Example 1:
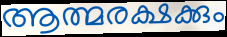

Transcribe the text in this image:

ആത്മരക്ഷക്കും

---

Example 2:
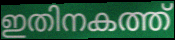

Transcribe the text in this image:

ഇതിനകത്ത്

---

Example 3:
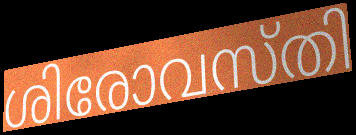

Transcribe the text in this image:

ശിരോവസ്തി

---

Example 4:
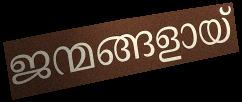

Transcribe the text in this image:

ജന്മങ്ങളായ്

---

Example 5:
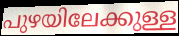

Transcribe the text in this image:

പുഴയിലേക്കുള്ള